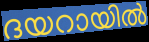
ദയറായിൽ